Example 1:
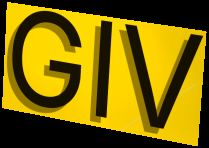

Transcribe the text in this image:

GIV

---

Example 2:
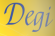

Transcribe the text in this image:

Degi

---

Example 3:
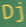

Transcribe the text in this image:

Dj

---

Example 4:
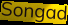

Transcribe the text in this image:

Songad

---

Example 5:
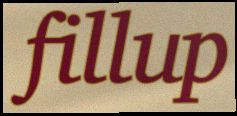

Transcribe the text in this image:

fillup